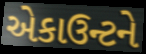
એકાઉન્ટને